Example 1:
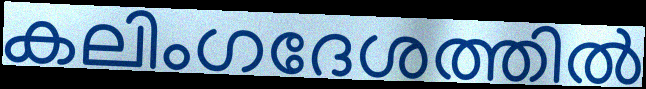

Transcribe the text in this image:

കലിംഗദേശത്തിൽ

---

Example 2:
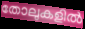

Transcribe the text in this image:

തോലുകളിൽ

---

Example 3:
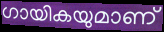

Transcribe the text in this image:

ഗായികയുമാണ്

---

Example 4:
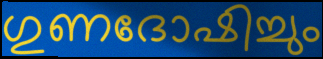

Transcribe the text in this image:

ഗുണദോഷിച്ചും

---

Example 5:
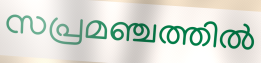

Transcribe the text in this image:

സപ്രമഞ്ചത്തിൽ